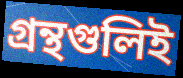
গ্রন্থগুলিই